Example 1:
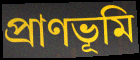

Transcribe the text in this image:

প্রাণভূমি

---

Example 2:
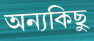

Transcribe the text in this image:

অন্যকিছু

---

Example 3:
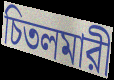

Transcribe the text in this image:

চিতলমারী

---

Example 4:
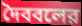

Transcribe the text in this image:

দৈববলের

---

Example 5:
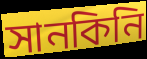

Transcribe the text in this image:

সানকিনি